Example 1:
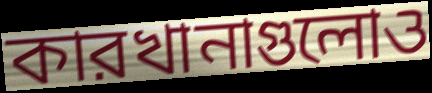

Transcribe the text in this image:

কারখানাগুলোও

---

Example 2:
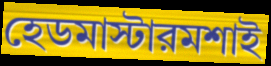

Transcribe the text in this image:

হেডমাস্টারমশাই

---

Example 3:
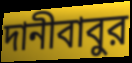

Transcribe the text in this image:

দানীবাবুর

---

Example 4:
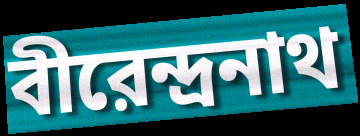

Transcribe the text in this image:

বীরেন্দ্রনাথ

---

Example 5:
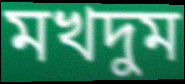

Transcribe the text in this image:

মখদুম